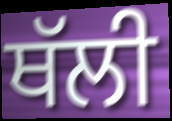
ਥੱਲੀ